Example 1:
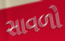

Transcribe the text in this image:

સાવળો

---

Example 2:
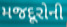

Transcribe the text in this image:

મજદૂરોની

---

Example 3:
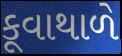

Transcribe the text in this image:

કૂવાથાળે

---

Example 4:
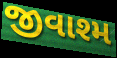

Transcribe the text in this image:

જીવાશ્મ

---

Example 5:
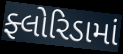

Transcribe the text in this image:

ફ્લોરિડામાં